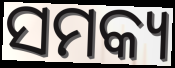
ସମକ୍ୟ